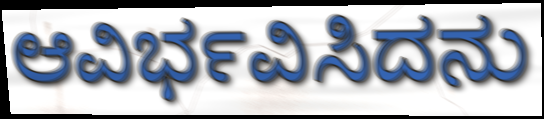
ಆವಿರ್ಭವಿಸಿದನು